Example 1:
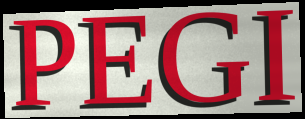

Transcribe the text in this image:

PEGI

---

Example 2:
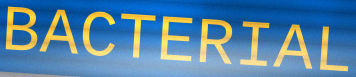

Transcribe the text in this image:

BACTERIAL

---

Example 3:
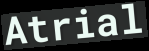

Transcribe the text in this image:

Atrial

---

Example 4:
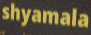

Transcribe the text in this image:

shyamala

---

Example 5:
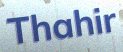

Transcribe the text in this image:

Thahir